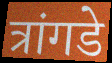
त्रांगडे